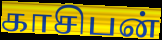
காசிபன்